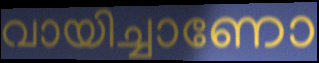
വായിച്ചാണോ